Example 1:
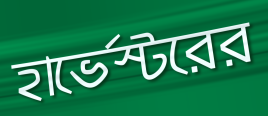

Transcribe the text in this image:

হার্ভেস্টরের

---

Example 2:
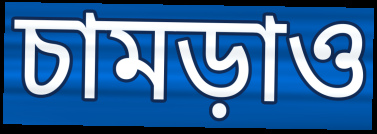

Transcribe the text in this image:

চামড়াও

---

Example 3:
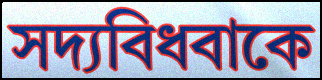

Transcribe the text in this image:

সদ্যবিধবাকে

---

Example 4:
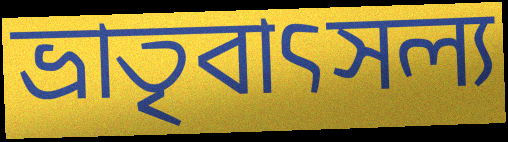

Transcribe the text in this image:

ভ্রাতৃবাৎসল্য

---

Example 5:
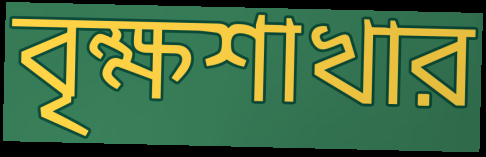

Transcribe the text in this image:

বৃক্ষশাখার